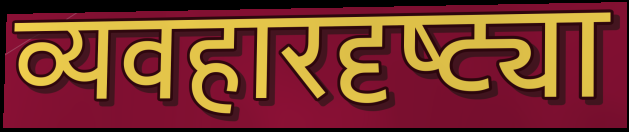
व्यवहारदृष्ट्या